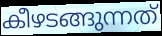
കീഴടങ്ങുന്നത്